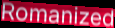
Romanized